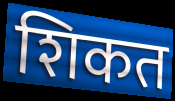
शिकत